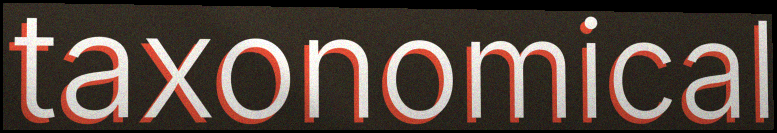
taxonomical